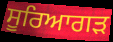
ਸੂਰਿਆਗੜ